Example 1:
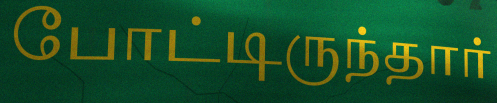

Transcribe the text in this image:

போட்டிருந்தார்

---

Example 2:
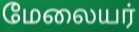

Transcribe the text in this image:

மேலையர்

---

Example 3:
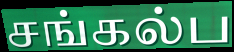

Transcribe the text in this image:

சங்கல்ப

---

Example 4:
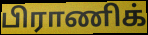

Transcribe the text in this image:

பிராணிக்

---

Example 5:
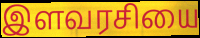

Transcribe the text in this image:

இளவரசியை